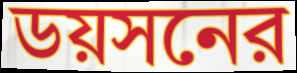
ডয়সনের